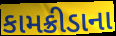
કામક્રીડાના